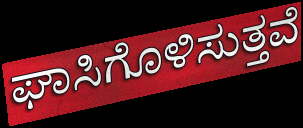
ಘಾಸಿಗೊಳಿಸುತ್ತವೆ